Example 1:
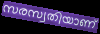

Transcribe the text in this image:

സരസ്വതിയാണ്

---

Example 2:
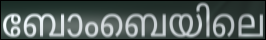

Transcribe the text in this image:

ബോംബെയിലെ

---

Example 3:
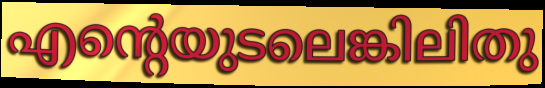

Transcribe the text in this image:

എന്റെയുടലെങ്കിലിതു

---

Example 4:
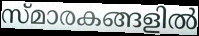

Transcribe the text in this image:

സ്മാരകങ്ങളിൽ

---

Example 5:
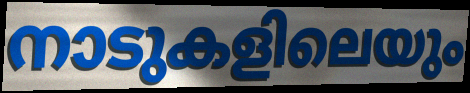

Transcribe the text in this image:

നാടുകളിലെയും